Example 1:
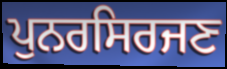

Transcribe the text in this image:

ਪੁਨਰਸਿਰਜਣ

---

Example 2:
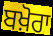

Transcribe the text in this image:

ਬਖ਼ੋਰਾ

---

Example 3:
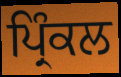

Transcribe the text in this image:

ਪ੍ਰਿੰਕਲ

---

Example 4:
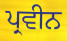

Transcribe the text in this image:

ਪ੍ਰਵੀਨ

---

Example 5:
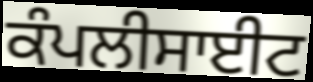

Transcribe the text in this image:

ਕੰਪਲੀਸਾਈਟ